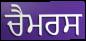
ਚੈਮਰਸ